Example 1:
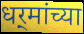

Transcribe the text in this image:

धर्मांच्या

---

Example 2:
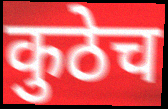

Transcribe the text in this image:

कुठेच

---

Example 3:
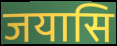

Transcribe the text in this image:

जयासि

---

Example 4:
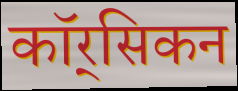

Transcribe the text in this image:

कॉर्सिकन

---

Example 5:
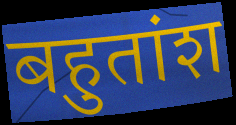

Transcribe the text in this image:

बहुतांश